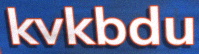
kvkbdu